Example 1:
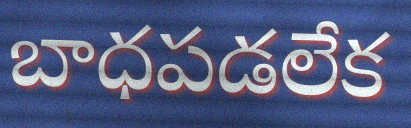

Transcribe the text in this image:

బాధపడలేక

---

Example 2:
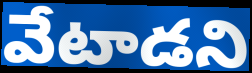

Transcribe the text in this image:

వేటాడని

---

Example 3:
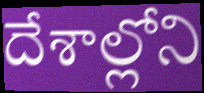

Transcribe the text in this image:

దేశాల్లోని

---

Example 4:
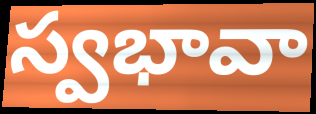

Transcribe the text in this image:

స్వభావా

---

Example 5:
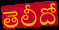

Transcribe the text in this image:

తెలీదో